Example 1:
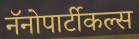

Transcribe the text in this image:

नॅनोपार्टीकल्स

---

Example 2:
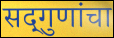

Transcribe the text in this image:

सद्‍गुणांचा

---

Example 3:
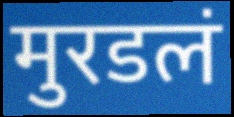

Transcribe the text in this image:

मुरडलं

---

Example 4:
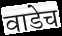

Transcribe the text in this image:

वाडेच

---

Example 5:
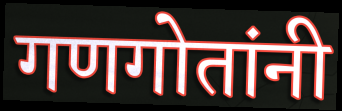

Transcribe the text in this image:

गणगोतांनी